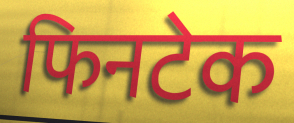
फिनटेक